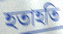
হতাহতি